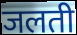
जलती